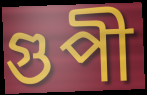
গুপী